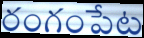
రంగంపేట